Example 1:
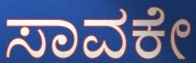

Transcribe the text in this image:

ಸಾವಕೇ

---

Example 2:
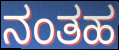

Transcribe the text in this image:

ನಂತಹ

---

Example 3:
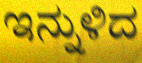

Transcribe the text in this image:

ಇನ್ನುಳಿದ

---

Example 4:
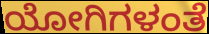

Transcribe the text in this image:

ಯೋಗಿಗಳಂತೆ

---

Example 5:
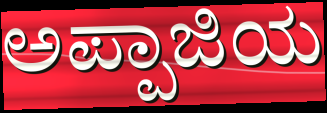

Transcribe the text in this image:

ಅಪ್ಪಾಜಿಯ